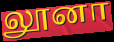
லூனா